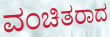
ವಂಚಿತರಾದ